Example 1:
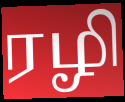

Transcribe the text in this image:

ரழி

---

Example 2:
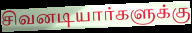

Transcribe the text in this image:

சிவனடியார்களுக்கு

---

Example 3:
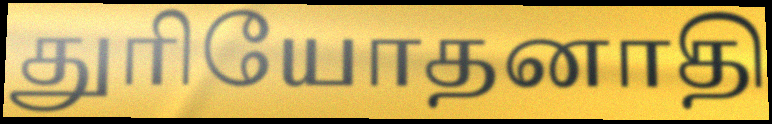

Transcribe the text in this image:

துரியோதனாதி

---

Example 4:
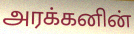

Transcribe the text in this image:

அரக்கனின்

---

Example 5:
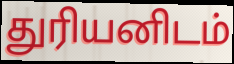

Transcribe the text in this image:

துரியனிடம்